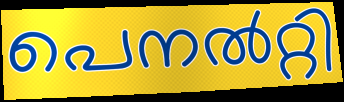
പെനൽറ്റി